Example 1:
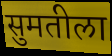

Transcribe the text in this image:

सुमतीला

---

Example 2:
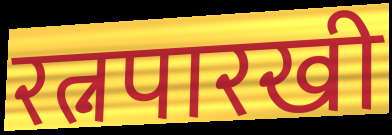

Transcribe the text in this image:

रत्नपारखी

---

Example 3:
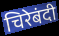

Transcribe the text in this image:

चिरेबंदी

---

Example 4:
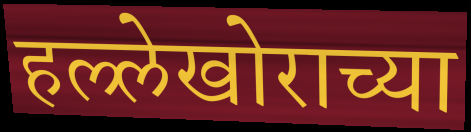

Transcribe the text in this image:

हल्लेखोराच्या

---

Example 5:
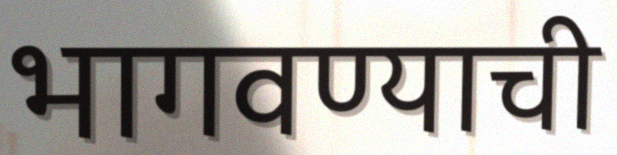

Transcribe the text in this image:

भागवण्याची